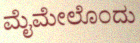
ಮೈಮೇಲೊಂದು